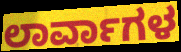
ಲಾರ್ವಾಗಳ